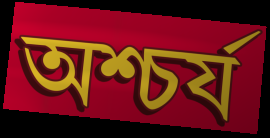
অশ্চর্য